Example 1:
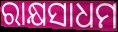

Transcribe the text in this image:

ରାକ୍ଷସାଧମ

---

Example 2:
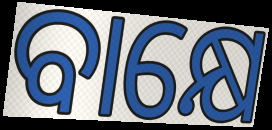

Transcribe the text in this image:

ବାକ୍ଷେ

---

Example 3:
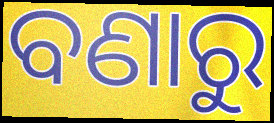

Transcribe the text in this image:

ବଣାରୁ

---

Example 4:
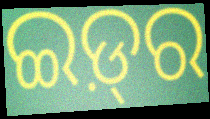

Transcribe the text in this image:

ଇଡ଼୍‍ର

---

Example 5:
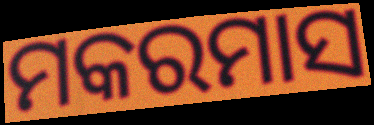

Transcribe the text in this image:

ମକରମାସ